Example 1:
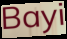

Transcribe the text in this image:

Bayi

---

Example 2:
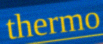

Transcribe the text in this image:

thermo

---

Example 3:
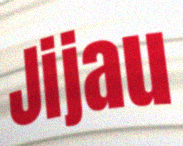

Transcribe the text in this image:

Jijau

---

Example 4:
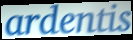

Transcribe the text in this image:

ardentis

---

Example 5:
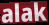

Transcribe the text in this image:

alak